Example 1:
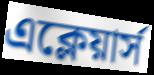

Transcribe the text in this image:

এক্লেয়ার্স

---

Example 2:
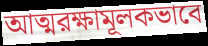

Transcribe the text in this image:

আত্মরক্ষামূলকভাবে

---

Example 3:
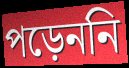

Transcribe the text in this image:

পড়েননি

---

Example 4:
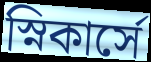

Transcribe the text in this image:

স্নিকার্সে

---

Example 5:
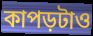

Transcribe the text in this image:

কাপড়টাও